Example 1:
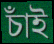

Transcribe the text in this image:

চাঁই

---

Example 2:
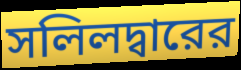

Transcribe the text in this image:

সলিলদ্বারের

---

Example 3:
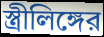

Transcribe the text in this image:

স্ত্রীলিঙ্গের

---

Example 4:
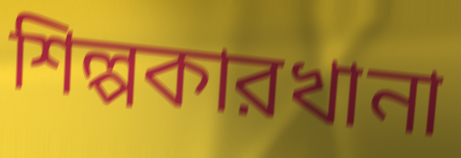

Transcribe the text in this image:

শিল্পকারখানা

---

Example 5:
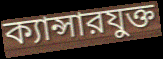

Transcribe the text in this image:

ক্যান্সারযুক্ত